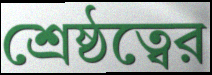
শ্রেষ্ঠত্বের